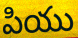
పియు